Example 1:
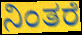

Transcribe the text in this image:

ನಿಂತರೆ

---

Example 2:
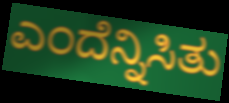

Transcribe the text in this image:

ಎಂದೆನ್ನಿಸಿತು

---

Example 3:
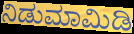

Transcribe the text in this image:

ನಿಡುಮಾಮಿಡಿ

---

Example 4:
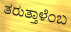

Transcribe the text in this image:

ತರುತ್ತಾಳೆಂಬ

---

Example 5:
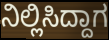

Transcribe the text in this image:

ನಿಲ್ಲಿಸಿದ್ದಾಗ